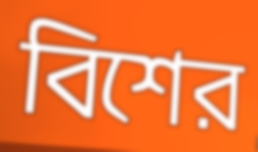
বিশের